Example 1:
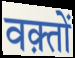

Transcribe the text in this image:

वक़्तों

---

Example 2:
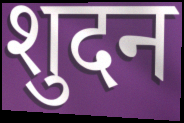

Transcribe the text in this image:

शुदन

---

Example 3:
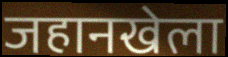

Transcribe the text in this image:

जहानखेला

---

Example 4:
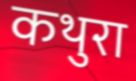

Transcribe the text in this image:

कथुरा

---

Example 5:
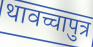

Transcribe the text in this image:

थावच्चापुत्र